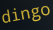
dingo